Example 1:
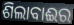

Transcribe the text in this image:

ଶିଲାବାଈର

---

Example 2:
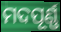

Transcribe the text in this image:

ମଦପୂର୍ଣ୍ଣ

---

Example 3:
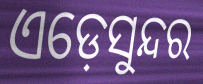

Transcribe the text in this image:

ଏଡ଼େସୁନ୍ଦର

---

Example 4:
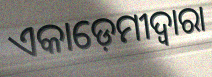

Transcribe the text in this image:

ଏକାଡ଼େମୀଦ୍ୱାରା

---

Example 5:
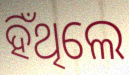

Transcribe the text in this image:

ହିଁଥିଲେ